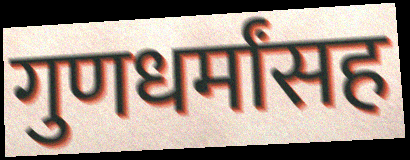
गुणधर्मांसह